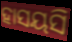
ହାସୟସି